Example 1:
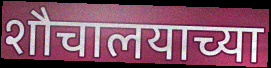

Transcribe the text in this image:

शौचालयाच्या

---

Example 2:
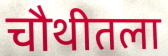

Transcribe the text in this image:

चौथीतला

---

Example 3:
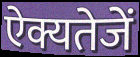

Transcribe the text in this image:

ऐक्यतेजें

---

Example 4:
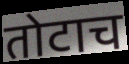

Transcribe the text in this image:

तोटाच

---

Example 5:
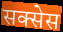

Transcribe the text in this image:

सक्सेस